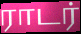
ராடர்